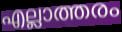
എല്ലാത്തരം